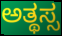
ಅತ್ಥಸ್ಸ